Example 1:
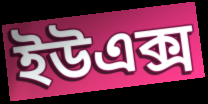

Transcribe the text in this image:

ইউএক্স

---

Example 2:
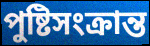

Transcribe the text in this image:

পুষ্টিসংক্রান্ত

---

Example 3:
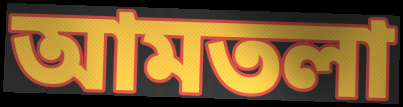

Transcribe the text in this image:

আমতলা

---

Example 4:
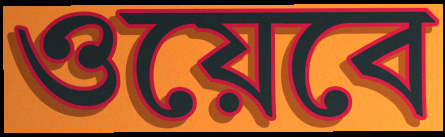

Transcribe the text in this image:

ওয়েবে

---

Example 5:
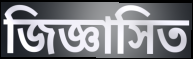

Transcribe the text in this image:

জিজ্ঞাসিত